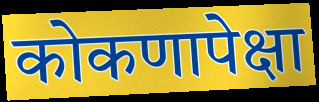
कोकणापेक्षा